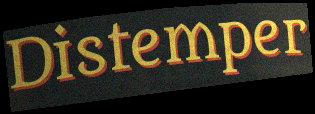
Distemper